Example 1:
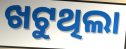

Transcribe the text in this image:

ଖଟୁଥିଲା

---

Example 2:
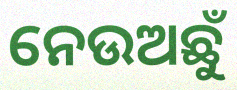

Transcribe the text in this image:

ନେଉଅଛୁଁ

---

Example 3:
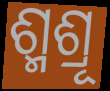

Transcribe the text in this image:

ଶ୍ମଶ୍ରୂ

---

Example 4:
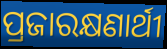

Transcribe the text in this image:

ପ୍ରଜାରକ୍ଷଣାର୍ଥୀ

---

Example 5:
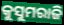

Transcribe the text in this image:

କୁସୁମରାଜି